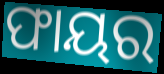
ଫାୟର